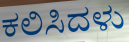
ಕಲಿಸಿದಳು